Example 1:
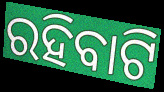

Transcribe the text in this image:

ରହିବାଟି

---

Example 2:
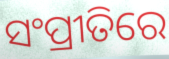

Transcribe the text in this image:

ସଂପ୍ରୀତିରେ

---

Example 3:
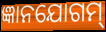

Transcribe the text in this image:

ଜ୍ଞାନଯୋଗମ୍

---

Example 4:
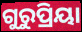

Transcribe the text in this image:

ଗୁରୁପ୍ରିୟା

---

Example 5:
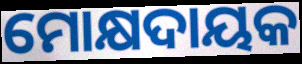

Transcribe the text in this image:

ମୋକ୍ଷଦାୟକ